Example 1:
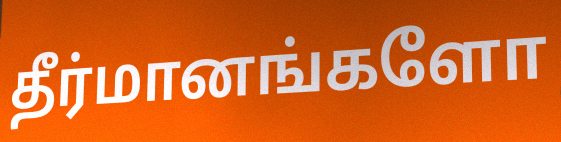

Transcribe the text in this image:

தீர்மானங்களோ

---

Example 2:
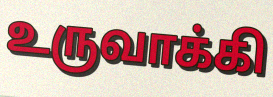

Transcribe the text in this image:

உருவாக்கி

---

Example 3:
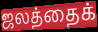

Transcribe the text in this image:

ஜலத்தைக்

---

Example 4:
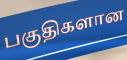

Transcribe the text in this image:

பகுதிகளான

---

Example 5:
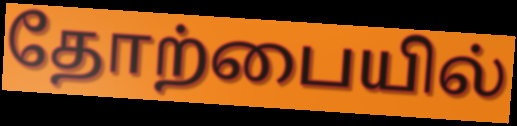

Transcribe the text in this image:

தோற்பையில்